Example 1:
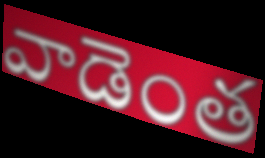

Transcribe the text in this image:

వాడెంత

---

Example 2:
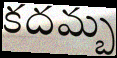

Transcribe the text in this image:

కదమ్బ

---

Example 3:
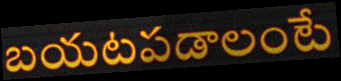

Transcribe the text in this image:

బయటపడాలంటే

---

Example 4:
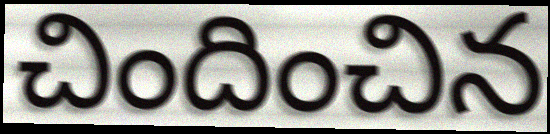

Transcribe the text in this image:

చిందించిన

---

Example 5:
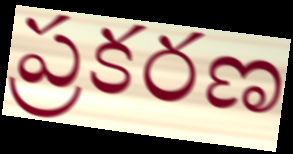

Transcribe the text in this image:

ప్రకరణ